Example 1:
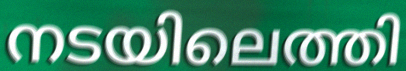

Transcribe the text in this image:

നടയിലെത്തി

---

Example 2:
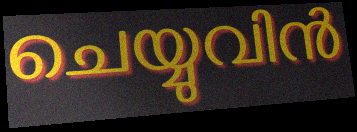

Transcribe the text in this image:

ചെയ്യുവിൻ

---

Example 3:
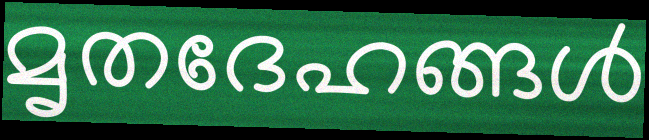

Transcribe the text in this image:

മൃതദേഹങ്ങൾ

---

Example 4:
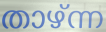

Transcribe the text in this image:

താഴ്ന്ന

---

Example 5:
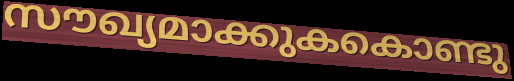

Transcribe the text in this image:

സൗഖ്യമാക്കുകകൊണ്ടു